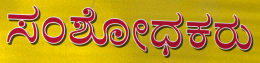
ಸಂಶೋಧಕರು